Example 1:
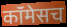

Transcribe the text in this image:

कॉंमेसच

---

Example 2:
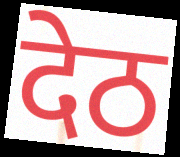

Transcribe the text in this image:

देठ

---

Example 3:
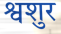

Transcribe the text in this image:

श्वशुर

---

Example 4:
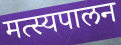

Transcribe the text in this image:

मत्स्यपालन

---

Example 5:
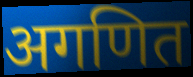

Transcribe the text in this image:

अगणित